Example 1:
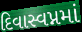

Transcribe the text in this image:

દિવાસ્વપ્નમાં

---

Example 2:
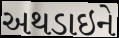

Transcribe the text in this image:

અથડાઇને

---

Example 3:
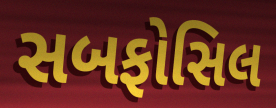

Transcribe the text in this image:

સબફોસિલ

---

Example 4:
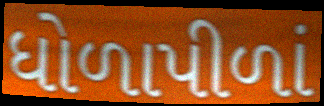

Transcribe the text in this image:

ધોળાપીળાં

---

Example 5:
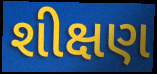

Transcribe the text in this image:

શીક્ષણ